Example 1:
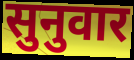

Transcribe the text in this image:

सुनुवार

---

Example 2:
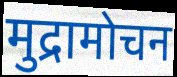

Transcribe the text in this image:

मुद्रामोचन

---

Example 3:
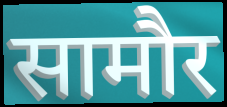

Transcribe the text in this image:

सामौर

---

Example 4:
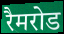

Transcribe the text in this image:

रैमरोड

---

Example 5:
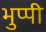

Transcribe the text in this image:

भुप्पी